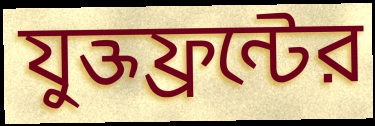
যুক্তফ্রন্টের